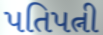
પતિપત્ની